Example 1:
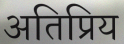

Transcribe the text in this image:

अतिप्रिय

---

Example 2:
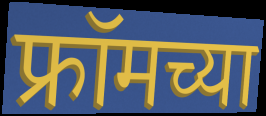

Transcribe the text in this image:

फ्रॉमच्या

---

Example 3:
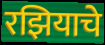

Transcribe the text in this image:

रझियाचे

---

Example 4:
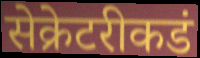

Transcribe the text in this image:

सेक्रेटरीकडं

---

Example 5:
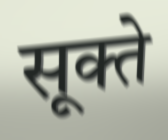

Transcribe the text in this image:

सूक्ते